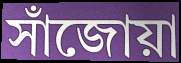
সাঁজোয়া